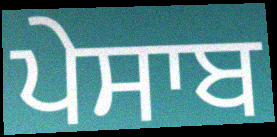
ਪੇਸਾਬ